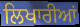
ਲਿਖਾਰੀਆਂ